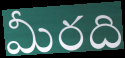
మీరది